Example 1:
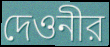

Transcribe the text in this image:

দেওনীর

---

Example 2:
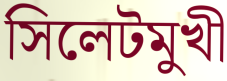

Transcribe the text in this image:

সিলেটমুখী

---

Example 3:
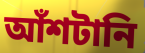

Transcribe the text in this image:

আঁশটানি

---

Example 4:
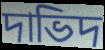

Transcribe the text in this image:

দাভিদ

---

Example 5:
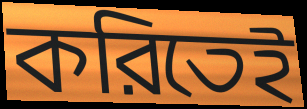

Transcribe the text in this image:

করিতেই